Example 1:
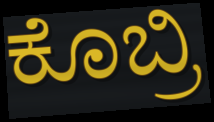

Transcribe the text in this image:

ಕೊಬ್ರಿ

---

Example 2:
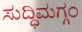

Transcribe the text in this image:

ಸುದ್ಧಿಮಗ್ಗಂ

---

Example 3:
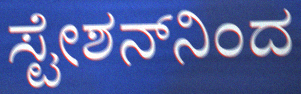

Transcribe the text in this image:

ಸ್ಟೇಶನ್‌ನಿಂದ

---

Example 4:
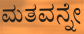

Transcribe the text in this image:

ಮತವನ್ನೇ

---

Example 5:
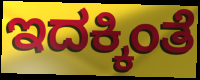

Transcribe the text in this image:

ಇದಕ್ಕಿಂತೆ